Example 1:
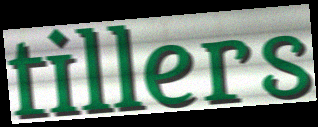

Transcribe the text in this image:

tillers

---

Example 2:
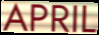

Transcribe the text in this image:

APRIL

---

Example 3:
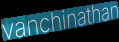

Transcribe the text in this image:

vanchinathan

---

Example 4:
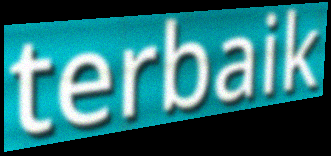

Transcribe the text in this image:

terbaik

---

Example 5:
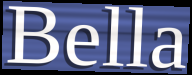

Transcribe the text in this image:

Bella